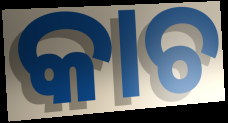
କାଚ